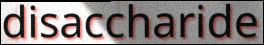
disaccharide